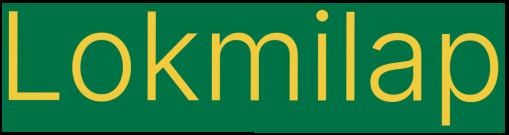
Lokmilap